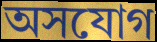
অসযোগ